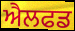
ਐਲਫਡ